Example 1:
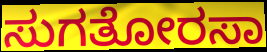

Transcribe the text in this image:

ಸುಗತೋರಸಾ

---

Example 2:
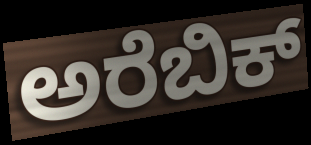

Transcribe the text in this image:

ಅರೆಬಿಕ್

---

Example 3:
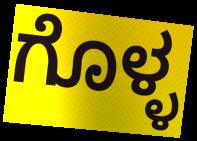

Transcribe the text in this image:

ಗೊಳ್ಳ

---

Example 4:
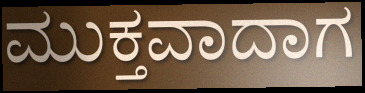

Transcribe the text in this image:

ಮುಕ್ತವಾದಾಗ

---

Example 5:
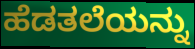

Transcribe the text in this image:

ಹೆಡತಲೆಯನ್ನು